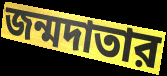
জন্মদাতার